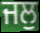
ਜਲੁ